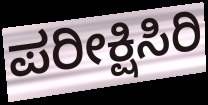
ಪರೀಕ್ಷಿಸಿರಿ